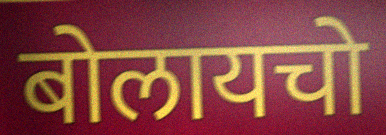
बोलायचो